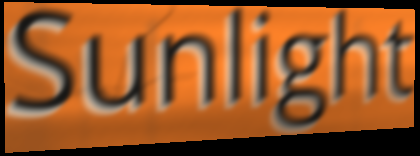
Sunlight